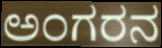
ಅಂಗರನ